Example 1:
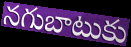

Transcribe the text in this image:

నగుబాటుకు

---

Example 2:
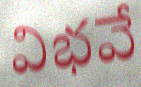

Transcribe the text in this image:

విభవే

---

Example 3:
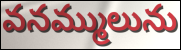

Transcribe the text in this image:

వనమ్ములును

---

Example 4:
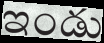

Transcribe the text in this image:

ఇండు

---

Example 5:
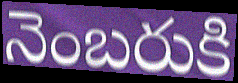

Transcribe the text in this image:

నెంబరుకి